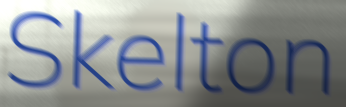
Skelton